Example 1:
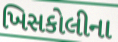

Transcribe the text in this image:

ખિસકોલીના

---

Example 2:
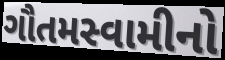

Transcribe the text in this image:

ગૌતમસ્વામીનો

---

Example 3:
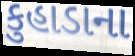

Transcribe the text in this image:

કુહાડાના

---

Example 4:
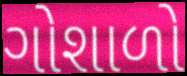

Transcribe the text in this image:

ગોશાળો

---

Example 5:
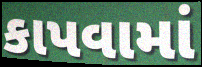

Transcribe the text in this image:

કાપવામાં